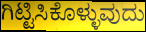
ಗಿಟ್ಟಿಸಿಕೊಳ್ಳುವುದು